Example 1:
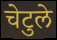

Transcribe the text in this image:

चेटुले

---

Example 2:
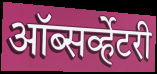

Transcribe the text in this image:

ऑब्सर्व्हेटरी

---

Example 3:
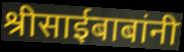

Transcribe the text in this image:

श्रीसाईबाबांनी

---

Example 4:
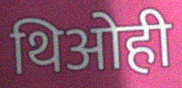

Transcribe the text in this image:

थिओही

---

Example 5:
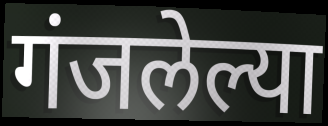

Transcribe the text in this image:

गंजलेल्या